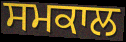
ਸਮਕਾਲ